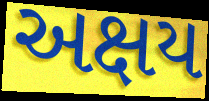
અક્ષય